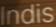
Indis